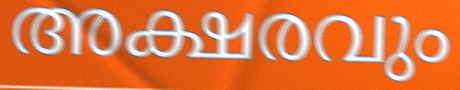
അക്ഷരവും